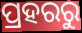
ପ୍ରହରରୁ